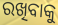
ରଖିବାକୁ